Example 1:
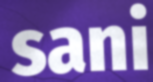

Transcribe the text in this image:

sani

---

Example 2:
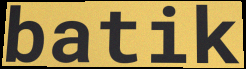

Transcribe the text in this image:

batik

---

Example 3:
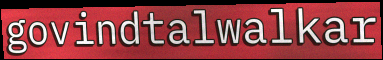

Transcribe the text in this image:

govindtalwalkar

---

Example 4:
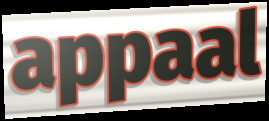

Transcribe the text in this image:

appaal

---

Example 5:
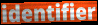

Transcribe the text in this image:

identifier